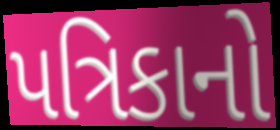
પત્રિકાનો